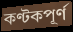
কণ্টকপূর্ণ